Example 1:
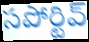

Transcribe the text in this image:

సపోర్టివ్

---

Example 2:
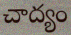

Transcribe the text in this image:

చాద్యం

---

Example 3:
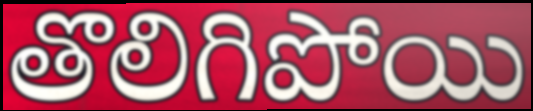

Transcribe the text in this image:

తొలిగిపోయి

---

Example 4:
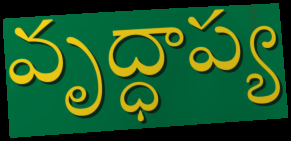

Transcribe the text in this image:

వృద్ధాప్య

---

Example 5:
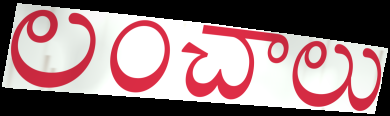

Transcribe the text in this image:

లంచాలు